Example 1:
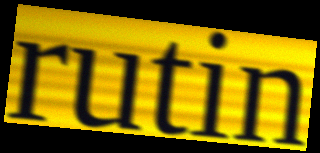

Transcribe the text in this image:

rutin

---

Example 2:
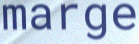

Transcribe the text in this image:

marge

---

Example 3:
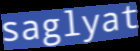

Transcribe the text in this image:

saglyat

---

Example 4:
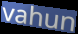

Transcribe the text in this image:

vahun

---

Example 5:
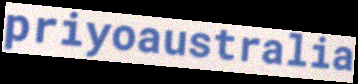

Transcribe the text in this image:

priyoaustralia